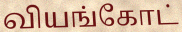
வியங்கோட்